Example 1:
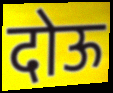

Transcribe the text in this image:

दोऊ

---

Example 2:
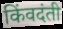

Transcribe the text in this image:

किंवदंती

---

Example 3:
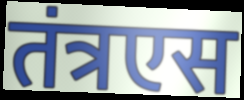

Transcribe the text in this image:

तंत्रएस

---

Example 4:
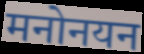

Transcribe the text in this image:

मनोनयन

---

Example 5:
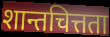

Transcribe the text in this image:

शान्तचित्तता